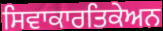
ਸਿਵਾਕਾਰਤਿਕੇਅਨ